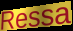
Ressa